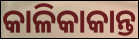
କାଳିକାକାନ୍ତ